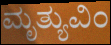
ಮೃತ್ಯುವಿಂ